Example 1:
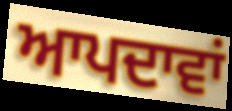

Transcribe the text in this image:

ਆਪਦਾਵਾਂ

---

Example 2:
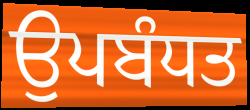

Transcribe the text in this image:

ਉਪਬੰਧਤ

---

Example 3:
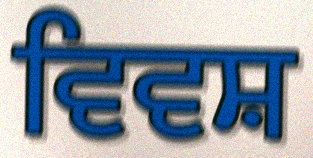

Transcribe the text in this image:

ਵਿਵਸ਼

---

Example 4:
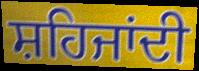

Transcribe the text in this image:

ਸ਼ਹਿਜਾਂਦੀ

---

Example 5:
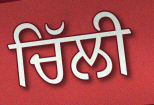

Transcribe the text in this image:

ਚਿੱਲੀ